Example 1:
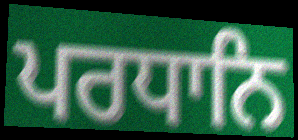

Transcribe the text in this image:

ਪਰਧਾਨਿ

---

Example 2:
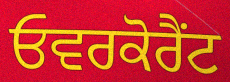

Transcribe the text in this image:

ਓਵਰਕੋਰੈਂਟ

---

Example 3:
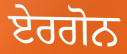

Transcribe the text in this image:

ਏਰਗੋਨ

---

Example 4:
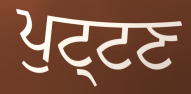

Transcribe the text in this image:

ਪੁਟ੍ਟਣ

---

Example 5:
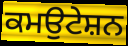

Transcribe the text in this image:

ਕਮਉਟੇਸ਼ਨ